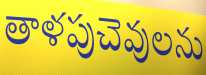
తాళపుచెవులను